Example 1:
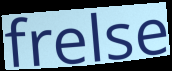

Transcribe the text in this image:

frelse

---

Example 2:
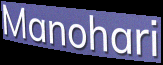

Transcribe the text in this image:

Manohari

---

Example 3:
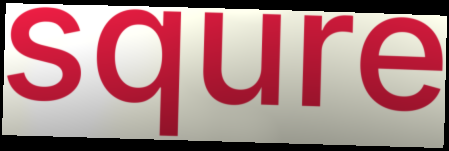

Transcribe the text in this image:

squre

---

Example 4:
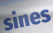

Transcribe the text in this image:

sines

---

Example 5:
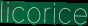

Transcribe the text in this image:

licorice